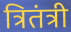
त्रितंत्री